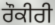
ਰੌਕੀਰੀ